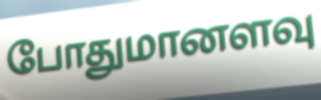
போதுமானளவு